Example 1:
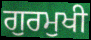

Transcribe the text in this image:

ਗੁਰਮੁਖੀ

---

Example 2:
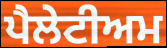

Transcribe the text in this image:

ਪੈਲੇਟੀਅਮ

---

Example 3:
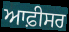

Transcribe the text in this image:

ਆਫ਼ੀਸਰ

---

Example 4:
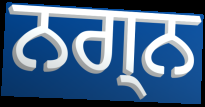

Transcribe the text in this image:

ਨਗ੍ਨ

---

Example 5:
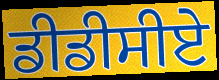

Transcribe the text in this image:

ਡੀਡੀਸੀਏ